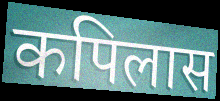
कपिलास